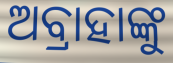
ଅବ୍ରାହାଙ୍କୁ